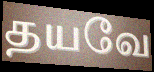
தயவே